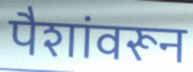
पैशांवरून